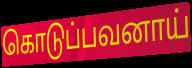
கொடுப்பவனாய்